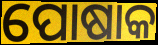
ପୋଷାକ